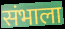
संभाला